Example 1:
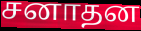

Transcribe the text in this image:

சனாதன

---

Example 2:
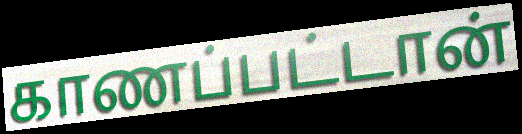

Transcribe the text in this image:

காணப்பட்டான்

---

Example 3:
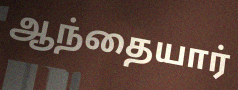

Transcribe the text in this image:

ஆந்தையார்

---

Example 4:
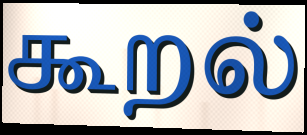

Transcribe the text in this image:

கூறல்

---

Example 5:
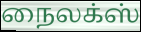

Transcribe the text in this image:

நைலக்ஸ்